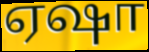
ஏஷா